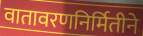
वातावरणनिर्मितीने